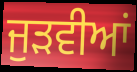
ਜੁੜਵੀਆਂ